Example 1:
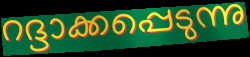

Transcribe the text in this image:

റദ്ദാക്കപ്പെടുന്നു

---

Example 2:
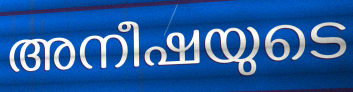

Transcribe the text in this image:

അനീഷയുടെ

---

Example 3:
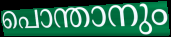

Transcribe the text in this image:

പൊന്താനും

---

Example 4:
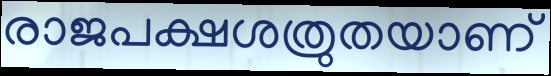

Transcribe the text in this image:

രാജപക്ഷശത്രുതയാണ്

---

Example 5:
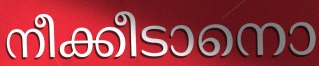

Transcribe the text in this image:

നീക്കീടാനൊ